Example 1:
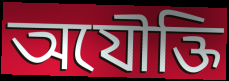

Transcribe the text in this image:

অযৌক্তি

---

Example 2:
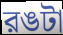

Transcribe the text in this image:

রঙটা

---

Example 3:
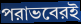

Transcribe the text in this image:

পরাভবেরই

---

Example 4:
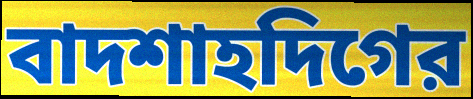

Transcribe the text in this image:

বাদশাহদিগের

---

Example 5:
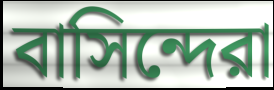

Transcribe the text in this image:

বাসিন্দেরা